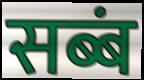
सब्बं